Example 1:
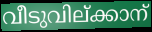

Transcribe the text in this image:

വീടുവില്ക്കാന്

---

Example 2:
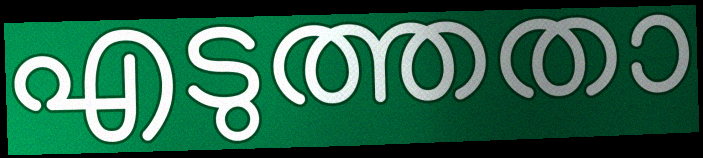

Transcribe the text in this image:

എടുത്തതാ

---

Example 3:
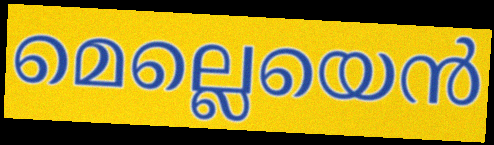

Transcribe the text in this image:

മെല്ലെയെൻ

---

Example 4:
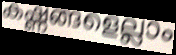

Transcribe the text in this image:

കഷ്ണങ്ങളെല്ലാം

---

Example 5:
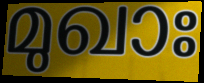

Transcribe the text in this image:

മുഖാഃ